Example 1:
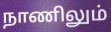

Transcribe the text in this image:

நாணிலும்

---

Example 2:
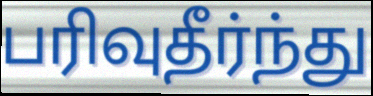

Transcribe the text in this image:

பரிவுதீர்ந்து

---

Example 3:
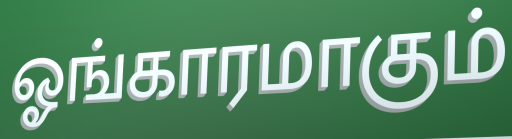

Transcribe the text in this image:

ஓங்காரமாகும்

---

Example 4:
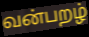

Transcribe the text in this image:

வன்பறழ்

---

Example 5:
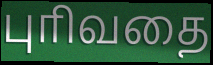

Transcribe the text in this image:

புரிவதை